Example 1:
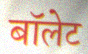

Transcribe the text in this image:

बॉलेट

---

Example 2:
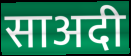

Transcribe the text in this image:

साअदी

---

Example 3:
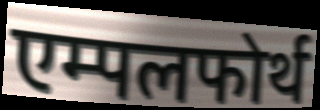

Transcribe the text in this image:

एम्पलफोर्थ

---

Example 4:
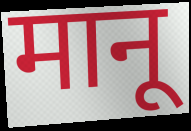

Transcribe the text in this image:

मानू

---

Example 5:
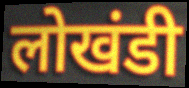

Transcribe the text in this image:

लोखंडी